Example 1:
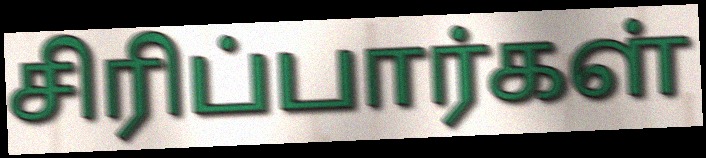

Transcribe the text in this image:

சிரிப்பார்கள்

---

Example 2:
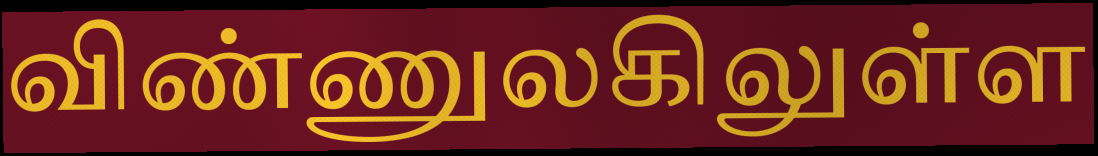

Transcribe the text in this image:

விண்ணுலகிலுள்ள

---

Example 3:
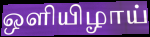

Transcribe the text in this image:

ஒளியிழாய்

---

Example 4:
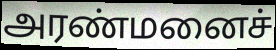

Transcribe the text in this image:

அரண்மனைச்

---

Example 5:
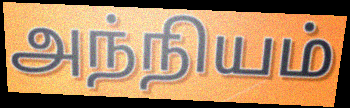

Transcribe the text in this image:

அந்நியம்